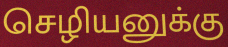
செழியனுக்கு